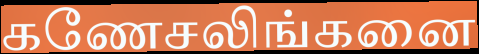
கணேசலிங்கனை